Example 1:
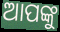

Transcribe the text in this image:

ଆପଙ୍କୁ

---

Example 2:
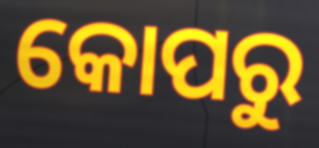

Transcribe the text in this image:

କୋପରୁ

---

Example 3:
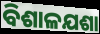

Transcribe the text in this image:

ବିଶାଳଯଶା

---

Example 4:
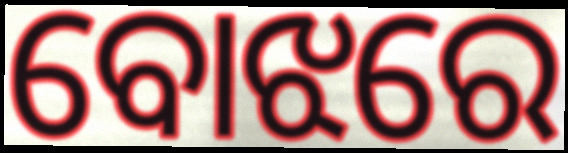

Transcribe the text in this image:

ବୋଝରେ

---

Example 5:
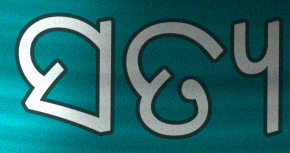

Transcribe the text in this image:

ସତ୍ୟ